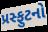
પ્રસ્ફુટનો